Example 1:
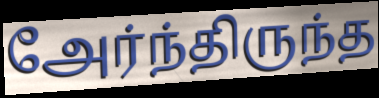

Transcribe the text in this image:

அேர்ந்திருந்த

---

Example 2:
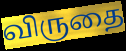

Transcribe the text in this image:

விருதை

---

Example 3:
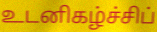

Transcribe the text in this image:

உடனிகழ்ச்சிப்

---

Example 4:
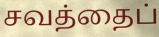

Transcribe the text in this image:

சவத்தைப்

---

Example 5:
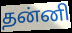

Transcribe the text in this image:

தன்னி